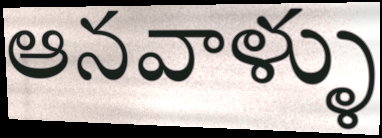
ఆనవాళ్ళు